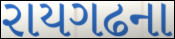
રાયગઢના